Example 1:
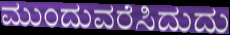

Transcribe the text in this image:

ಮುಂದುವರೆಸಿದುದು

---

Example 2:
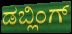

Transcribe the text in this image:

ಡಬ್ಲಿಂಗ್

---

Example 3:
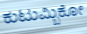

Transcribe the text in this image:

ಕುಟುಮ್ಬಿಕೋ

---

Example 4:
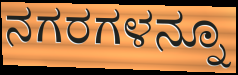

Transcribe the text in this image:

ನಗರಗಳನ್ನೂ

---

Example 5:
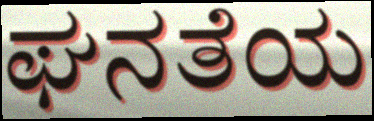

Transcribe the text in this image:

ಘನತೆಯ